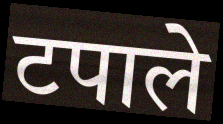
टपाले